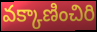
వక్కాణించిరి